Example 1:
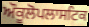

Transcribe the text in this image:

ਔਕੂਲੋਪਲਾਸਟਿਕ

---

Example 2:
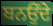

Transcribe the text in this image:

ਬਨਉਂਦੇ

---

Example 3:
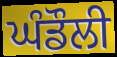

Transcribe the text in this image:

ਘੰਡੌਲੀ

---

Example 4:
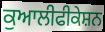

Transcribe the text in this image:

ਕੁਆਲੀਫੀਕੇਸ਼ਨ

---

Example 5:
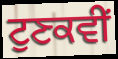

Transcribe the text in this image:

ਟੁਣਕਵੀਂ